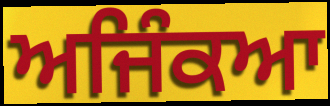
ਅਜਿੰਕਆ